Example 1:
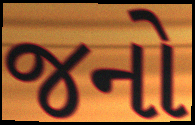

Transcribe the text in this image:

જનો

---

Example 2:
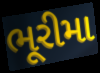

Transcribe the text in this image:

ભૂરીમા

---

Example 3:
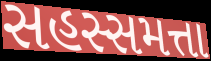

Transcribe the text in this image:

સહસ્સમત્તા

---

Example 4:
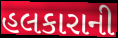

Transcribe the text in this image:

હલકારાની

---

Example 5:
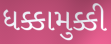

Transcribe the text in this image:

ધક્કામુક્કી